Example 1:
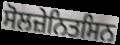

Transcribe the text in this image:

ਸੋਲਜ਼ੇਨਿਤਸਿਨ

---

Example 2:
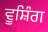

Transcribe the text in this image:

ਵੂਸ਼ਿੰਗ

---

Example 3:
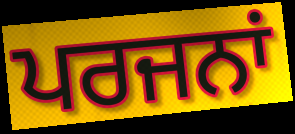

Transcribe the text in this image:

ਪਰਜਨਾਂ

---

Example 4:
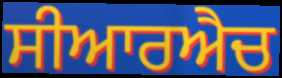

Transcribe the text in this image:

ਸੀਆਰਐਚ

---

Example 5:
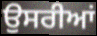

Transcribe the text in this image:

ਉਸਰੀਆਂ